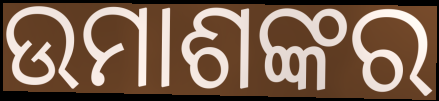
ଉମାଶଙ୍କର